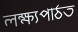
লক্ষ্যপাঠত